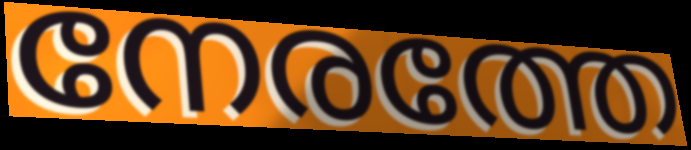
നേരത്തേ